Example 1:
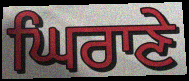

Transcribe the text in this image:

ਘਿਰਾਣੇ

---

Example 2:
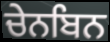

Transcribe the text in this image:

ਚੇਨਬਿਨ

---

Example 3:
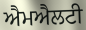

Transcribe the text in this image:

ਐਮਐਲਟੀ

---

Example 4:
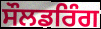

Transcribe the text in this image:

ਸੌਲਡਰਿੰਗ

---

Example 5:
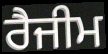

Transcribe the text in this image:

ਰੈਜੀਮ